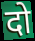
दो